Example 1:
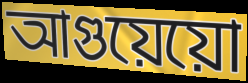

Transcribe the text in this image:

আগুয়েয়ো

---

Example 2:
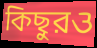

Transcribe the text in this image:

কিছুরও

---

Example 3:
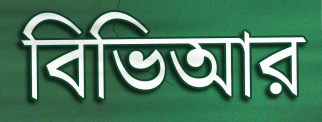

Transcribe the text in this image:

বিভিআর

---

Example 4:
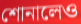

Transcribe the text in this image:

শোনালেও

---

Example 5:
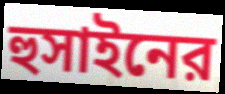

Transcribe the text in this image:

হুসাইনের